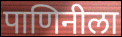
पाणिनीला